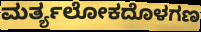
ಮರ್ತ್ಯಲೋಕದೊಳಗಣ